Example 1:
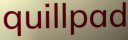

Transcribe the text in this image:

quillpad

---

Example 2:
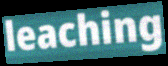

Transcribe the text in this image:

leaching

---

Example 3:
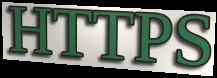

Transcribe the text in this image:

HTTPS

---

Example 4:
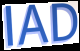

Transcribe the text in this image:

IAD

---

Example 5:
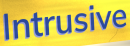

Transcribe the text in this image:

Intrusive